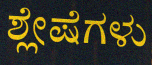
ಶ್ಲೇಷೆಗಳು